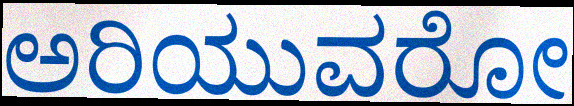
ಅರಿಯುವರೋ